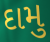
દામુ